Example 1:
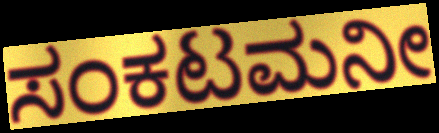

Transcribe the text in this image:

ಸಂಕಟಮನೀ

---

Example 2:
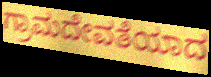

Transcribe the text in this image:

ಗ್ರಾಮದೇವತೆಯಾದ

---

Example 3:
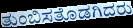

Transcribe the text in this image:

ತುಂಬಿಸತೊಡಗಿದರು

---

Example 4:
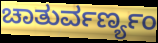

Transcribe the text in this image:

ಚಾತುರ್ವರ್ಣ್ಯಂ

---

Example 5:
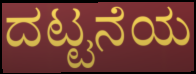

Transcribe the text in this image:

ದಟ್ಟನೆಯ